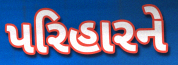
પરિહારને